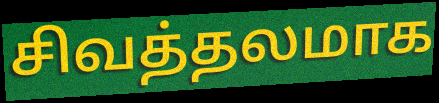
சிவத்தலமாக